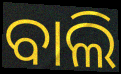
ବାଲି